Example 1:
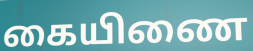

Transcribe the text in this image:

கையிணை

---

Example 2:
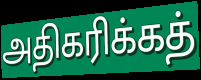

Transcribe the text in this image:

அதிகரிக்கத்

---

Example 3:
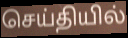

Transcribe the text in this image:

செய்தியில்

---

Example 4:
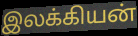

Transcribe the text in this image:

இலக்கியன்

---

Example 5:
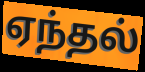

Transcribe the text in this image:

ஏந்தல்